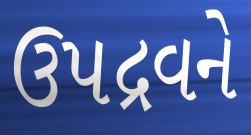
ઉપદ્રવને